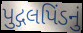
પુદ્ગલપિંડનું